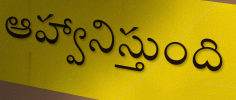
ఆహ్వానిస్తుంది